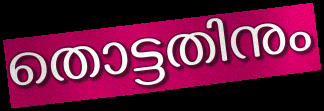
തൊട്ടതിനും